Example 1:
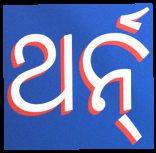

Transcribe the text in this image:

ଥର୍ନ୍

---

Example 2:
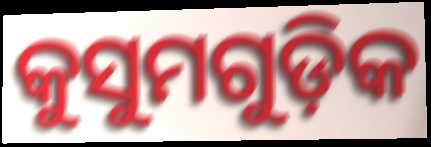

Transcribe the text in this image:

କୁସୁମଗୁଡ଼ିକ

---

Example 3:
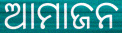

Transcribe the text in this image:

ଆମାଜନ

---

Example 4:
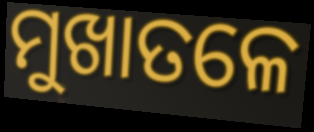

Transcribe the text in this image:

ମୁଖାତଳେ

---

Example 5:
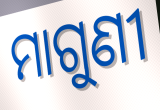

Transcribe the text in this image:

ମାଗୁଣୀ